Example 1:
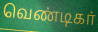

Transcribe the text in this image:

வெண்டிகர்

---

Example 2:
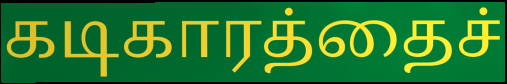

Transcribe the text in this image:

கடிகாரத்தைச்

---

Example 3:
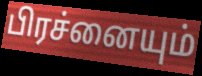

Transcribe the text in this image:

பிரச்னையும்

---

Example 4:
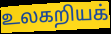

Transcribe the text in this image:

உலகறியக்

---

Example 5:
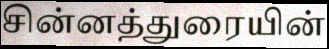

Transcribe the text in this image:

சின்னத்துரையின்